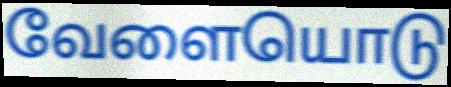
வேளையொடு